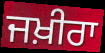
ਜਖ਼ੀਰਾ